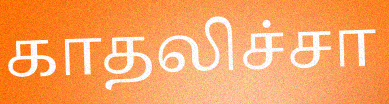
காதலிச்சா